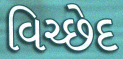
વિચ્છેદ